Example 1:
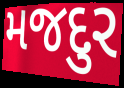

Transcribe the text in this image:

મજદુર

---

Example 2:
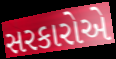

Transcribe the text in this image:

સરકારોએ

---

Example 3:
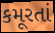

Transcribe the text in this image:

કમૂરતાં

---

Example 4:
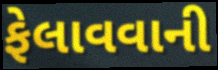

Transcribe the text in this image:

ફેલાવવાની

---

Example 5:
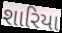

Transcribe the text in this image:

શારિયા